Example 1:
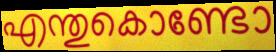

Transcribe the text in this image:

എന്തുകൊണ്ടോ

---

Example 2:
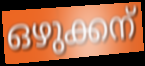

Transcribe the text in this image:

ഒഴുക്കന്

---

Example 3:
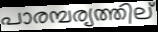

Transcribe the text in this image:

പാരമ്പര്യത്തില്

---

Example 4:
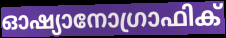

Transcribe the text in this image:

ഓഷ്യാനോഗ്രാഫിക്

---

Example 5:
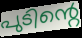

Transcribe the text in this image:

പുടിന്റെ